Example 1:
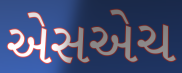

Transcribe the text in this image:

એસએચ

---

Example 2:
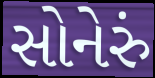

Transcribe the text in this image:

સોનેરું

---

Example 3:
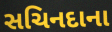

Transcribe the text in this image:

સચિનદાના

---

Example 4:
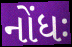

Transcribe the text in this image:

નોંધઃ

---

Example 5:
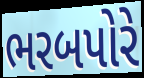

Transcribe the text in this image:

ભરબપોરે